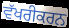
ਵੱਖਰੀਕਰਨ